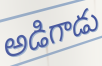
అడిగాడు